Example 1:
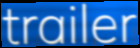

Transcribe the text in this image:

trailer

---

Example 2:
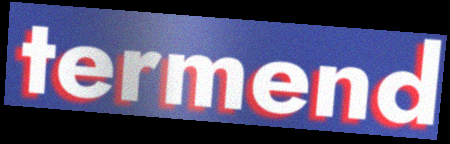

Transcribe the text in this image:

termend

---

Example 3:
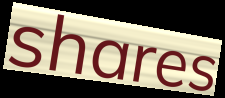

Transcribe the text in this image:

shares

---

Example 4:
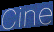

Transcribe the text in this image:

Cine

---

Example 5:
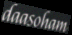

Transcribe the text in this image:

daasoham